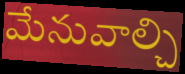
మేనువాల్చి